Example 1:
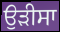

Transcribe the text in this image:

ਉਡ਼ੀਸਾ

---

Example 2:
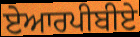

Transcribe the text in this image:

ਏਆਰਪੀਬੀਏ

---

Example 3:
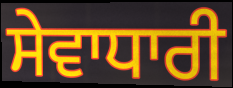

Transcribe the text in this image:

ਸੇਵਾਧਾਰੀ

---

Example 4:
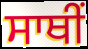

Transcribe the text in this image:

ਸਾਥੀਂ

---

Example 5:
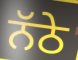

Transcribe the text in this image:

ਨੱਠੇ